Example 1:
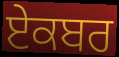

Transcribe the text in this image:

ਏਕਬਰ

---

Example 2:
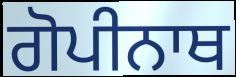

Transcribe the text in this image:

ਗੋਪੀਨਾਥ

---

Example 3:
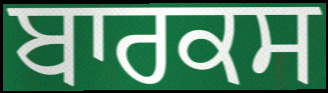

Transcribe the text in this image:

ਬਾਰਕਸ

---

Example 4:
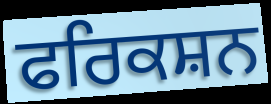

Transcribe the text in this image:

ਫਰਿਕਸ਼ਨ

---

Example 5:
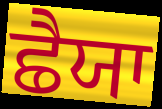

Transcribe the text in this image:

ਛੈਯਾ